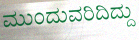
ಮುಂದುವರಿದಿದ್ದು